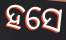
ହସେ